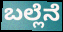
ಬಲ್ಲೆನೆ